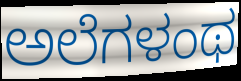
ಅಲೆಗಳಂಥ